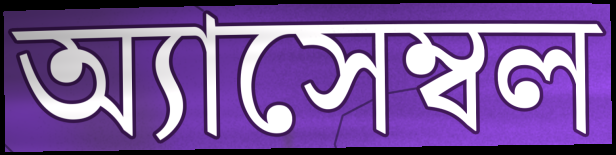
অ্যাসেম্বল